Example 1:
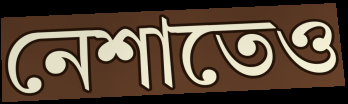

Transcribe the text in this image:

নেশাতেও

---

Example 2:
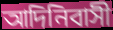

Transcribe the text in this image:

আদিনিবাসী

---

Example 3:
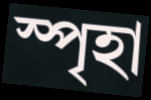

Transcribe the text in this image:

স্পৃহা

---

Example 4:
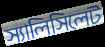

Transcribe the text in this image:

স্যালিসিলেট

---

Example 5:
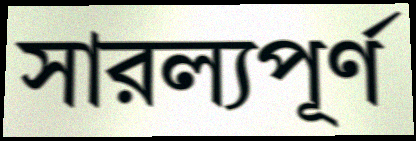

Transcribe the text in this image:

সারল্যপূর্ণ